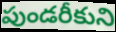
పుండరీకుని